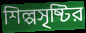
শিল্পসৃষ্টির